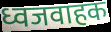
ध्वजवाहक